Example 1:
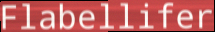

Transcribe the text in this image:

Flabellifer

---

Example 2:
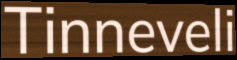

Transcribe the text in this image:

Tinneveli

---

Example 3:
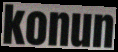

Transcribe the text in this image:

konun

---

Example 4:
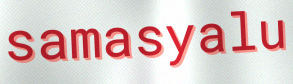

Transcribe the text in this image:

samasyalu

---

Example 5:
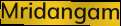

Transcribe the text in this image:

Mridangam